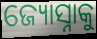
ଜ୍ୟୋସ୍ନାକୁ